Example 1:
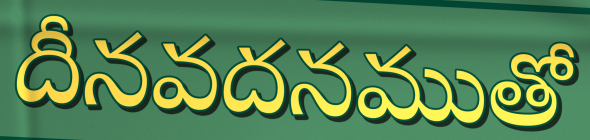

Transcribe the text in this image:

దీనవదనముతో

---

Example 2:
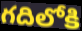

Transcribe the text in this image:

గదిలోకి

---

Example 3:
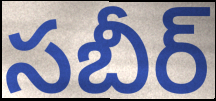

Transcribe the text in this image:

సబీర్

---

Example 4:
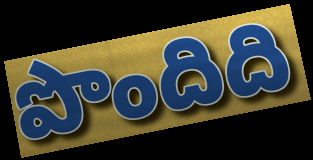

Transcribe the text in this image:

పొందిది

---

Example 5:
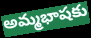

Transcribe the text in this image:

అమ్మభాషకు